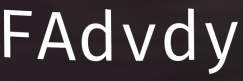
FAdvdy